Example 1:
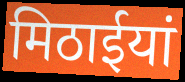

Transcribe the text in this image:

मिठाईयां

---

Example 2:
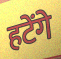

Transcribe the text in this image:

हटेंगे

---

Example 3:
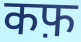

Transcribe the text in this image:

कफ़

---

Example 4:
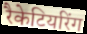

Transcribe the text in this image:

रैकेटियरिंग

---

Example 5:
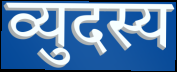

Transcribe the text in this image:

व्युदस्य